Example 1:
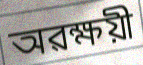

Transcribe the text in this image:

অৱক্ষয়ী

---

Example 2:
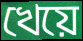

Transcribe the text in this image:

খেয়ে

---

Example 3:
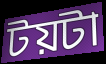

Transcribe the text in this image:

টয়টা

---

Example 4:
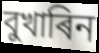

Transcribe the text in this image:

বুখাৰিন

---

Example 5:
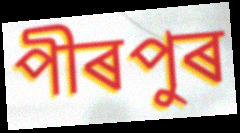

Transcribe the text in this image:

পীৰপুৰ